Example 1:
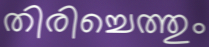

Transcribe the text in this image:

തിരിച്ചെത്തും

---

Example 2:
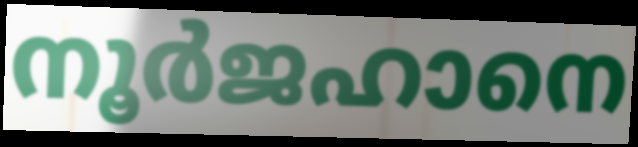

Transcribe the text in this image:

നൂർജഹാനെ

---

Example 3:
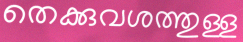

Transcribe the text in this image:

തെക്കുവശത്തുള്ള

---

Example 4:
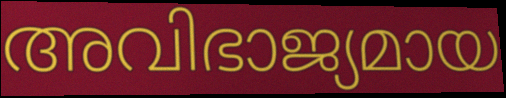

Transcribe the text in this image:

അവിഭാജ്യമായ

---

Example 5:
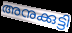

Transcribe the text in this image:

അനുക്കുട്ടി